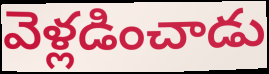
వెళ్లడించాడు